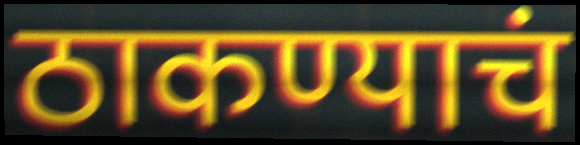
ठाकण्याचं